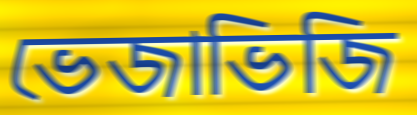
ভেজাভিজি